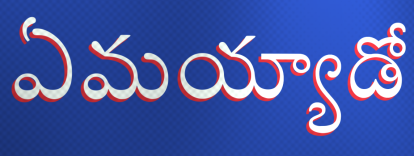
ఏమయ్యాడో